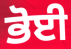
ਭੋਈ